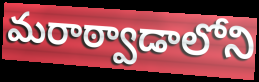
మరాఠ్వాడాలోని